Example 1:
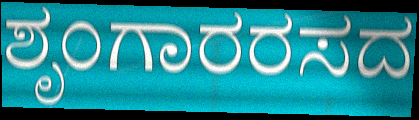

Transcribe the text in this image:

ಶೃಂಗಾರರಸದ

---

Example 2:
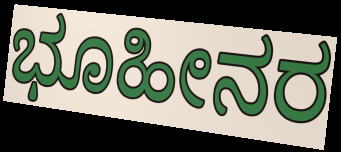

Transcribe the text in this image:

ಭೂಹೀನರ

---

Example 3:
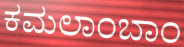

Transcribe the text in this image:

ಕಮಲಾಂಬಾಂ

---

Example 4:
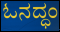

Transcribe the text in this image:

ಓನದ್ಧಂ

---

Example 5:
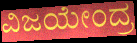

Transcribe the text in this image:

ವಿಜಯೇಂದ್ರ